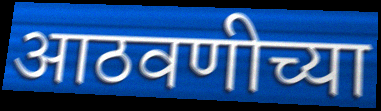
आठवणीच्या